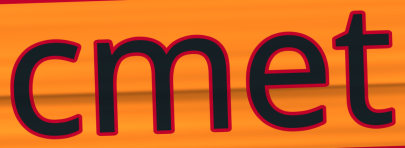
cmet